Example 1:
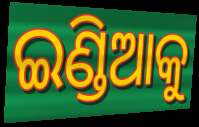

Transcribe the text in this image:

ଇଣ୍ଡିଆକୁ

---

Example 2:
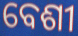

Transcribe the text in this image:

ବେଶୀ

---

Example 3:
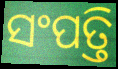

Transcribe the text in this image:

ସଂପତ୍ତି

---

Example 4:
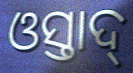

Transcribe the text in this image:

ଓସ୍ତାଦ୍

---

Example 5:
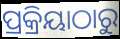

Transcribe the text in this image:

ପ୍ରକ୍ରିୟାଠାରୁ